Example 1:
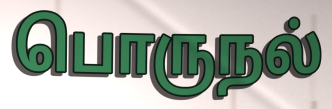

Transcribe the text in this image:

பொருநல்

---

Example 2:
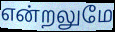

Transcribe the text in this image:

என்றலுமே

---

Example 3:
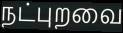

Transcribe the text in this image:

நட்புறவை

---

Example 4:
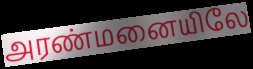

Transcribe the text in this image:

அரண்மனையிலே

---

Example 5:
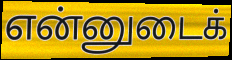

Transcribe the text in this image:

என்னுடைக்